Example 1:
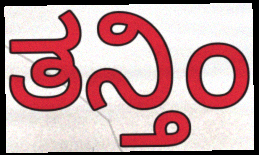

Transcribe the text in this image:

ತನ್ತಿಂ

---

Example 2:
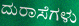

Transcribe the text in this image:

ದುರಾಸೆಗಳು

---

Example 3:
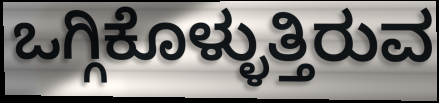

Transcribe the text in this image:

ಒಗ್ಗಿಕೊಳ್ಳುತ್ತಿರುವ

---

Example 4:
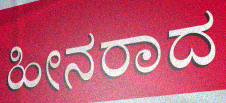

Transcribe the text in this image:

ಹೀನರಾದ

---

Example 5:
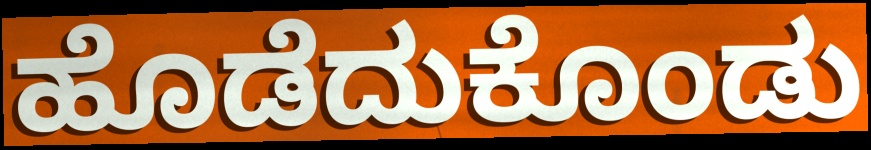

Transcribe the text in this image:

ಹೊಡೆದುಕೊಂಡು